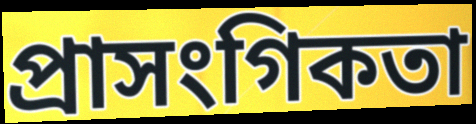
প্ৰাসংগিকতা